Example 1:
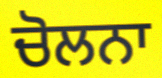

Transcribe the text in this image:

ਚੋਲਨਾ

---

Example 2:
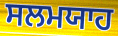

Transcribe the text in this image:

ਸਲਮਯਾਹ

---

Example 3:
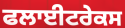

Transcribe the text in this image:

ਫਲਾਈਟਰੇਕਸ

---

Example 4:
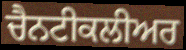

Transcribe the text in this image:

ਚੈਨਟੀਕਲੀਅਰ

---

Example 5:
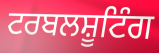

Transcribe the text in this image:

ਟਰਬਲਸ਼ੂਟਿੰਗ